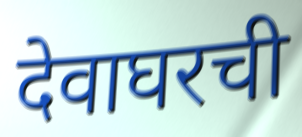
देवाघरची